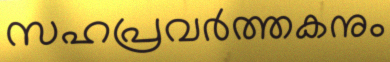
സഹപ്രവർത്തകനും